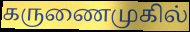
கருணைமுகில்